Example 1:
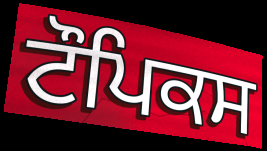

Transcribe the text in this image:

ਟੌਪਿਕਸ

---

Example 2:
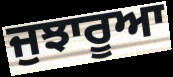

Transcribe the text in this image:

ਜੁਝਾਰੂਆ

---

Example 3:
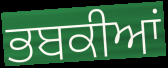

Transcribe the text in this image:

ਭਬਕੀਆਂ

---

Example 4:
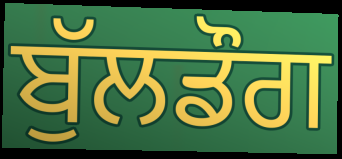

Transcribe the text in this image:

ਬੁੱਲਡੌਗ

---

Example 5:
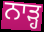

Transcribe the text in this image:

ਨਾੜ੍ਹ